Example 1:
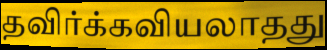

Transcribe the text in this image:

தவிர்க்கவியலாதது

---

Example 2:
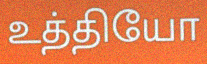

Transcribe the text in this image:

உத்தியோ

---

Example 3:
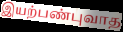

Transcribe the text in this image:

இயற்பண்புவாத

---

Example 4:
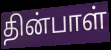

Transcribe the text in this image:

தின்பாள்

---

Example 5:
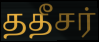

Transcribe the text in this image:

ததீசர்